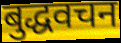
बुद्धवचन